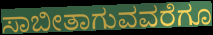
ಸಾಬೀತಾಗುವವರೆಗೂ